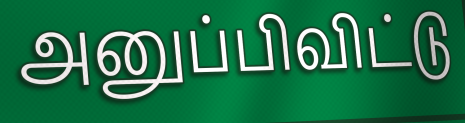
அனுப்பிவிட்டு